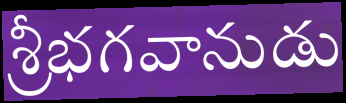
శ్రీభగవానుడు